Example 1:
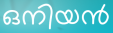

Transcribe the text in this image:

ഒനിയൻ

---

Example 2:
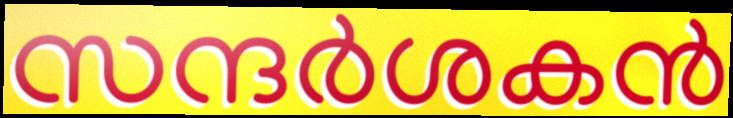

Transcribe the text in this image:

സന്ദർശകൻ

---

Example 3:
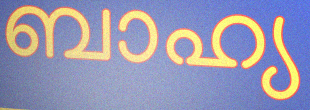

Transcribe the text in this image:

ബാഹ്യ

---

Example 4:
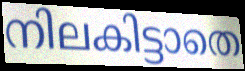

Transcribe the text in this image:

നിലകിട്ടാതെ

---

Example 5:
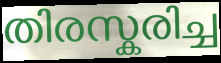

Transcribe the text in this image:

തിരസ്കരിച്ച